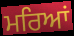
ਮਰਿਆਂ